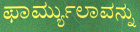
ಫಾರ್ಮ್ಯುಲಾವನ್ನು